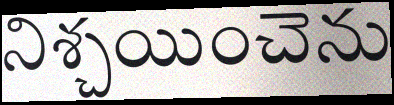
నిశ్చయించెను